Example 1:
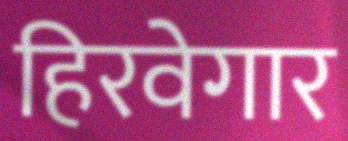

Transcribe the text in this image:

हिरवेगार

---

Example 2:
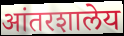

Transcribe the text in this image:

आंतरशालेय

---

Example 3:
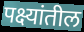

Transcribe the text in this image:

पक्ष्यांतील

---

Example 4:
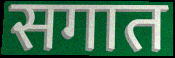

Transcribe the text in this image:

सगात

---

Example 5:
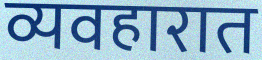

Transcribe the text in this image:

व्यवहारात